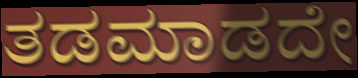
ತಡಮಾಡದೇ